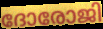
ദോരോജി